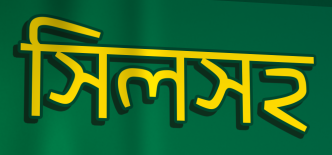
সিলসহ